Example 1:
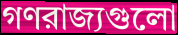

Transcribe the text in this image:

গণরাজ্যগুলো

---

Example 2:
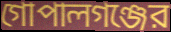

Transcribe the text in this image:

গোপালগঞ্জের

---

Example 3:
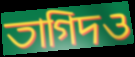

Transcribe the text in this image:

তাগিদও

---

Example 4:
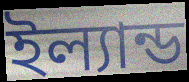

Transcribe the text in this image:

ইল্যান্ড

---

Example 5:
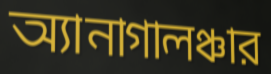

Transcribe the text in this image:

অ্যানাগালঞ্চার